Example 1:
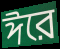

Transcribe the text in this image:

ঈরে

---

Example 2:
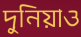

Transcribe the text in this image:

দুনিয়াও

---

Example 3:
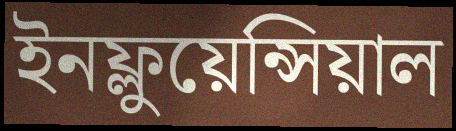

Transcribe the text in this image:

ইনফ্লুয়েন্সিয়াল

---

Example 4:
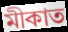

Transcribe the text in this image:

মীকাত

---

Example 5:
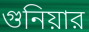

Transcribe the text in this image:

গুনিয়ার